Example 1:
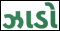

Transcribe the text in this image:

ઝાડો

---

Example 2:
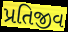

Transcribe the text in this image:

પ્રતિજીવ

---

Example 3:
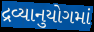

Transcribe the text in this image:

દ્રવ્યાનુયોગમાં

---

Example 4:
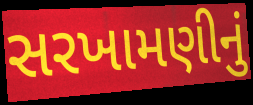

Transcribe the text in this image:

સરખામણીનું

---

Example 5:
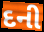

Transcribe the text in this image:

દની